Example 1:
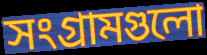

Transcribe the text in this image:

সংগ্রামগুলো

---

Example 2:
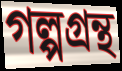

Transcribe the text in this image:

গল্পগ্রন্থ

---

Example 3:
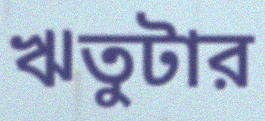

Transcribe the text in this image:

ঋতুটার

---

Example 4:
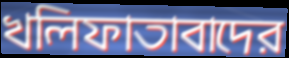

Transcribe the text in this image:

খলিফাতাবাদের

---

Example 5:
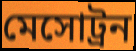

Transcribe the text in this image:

মেসোট্রন